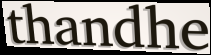
thandhe